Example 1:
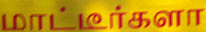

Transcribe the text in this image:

மாட்டீர்களா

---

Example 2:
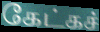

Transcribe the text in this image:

கேட்கச்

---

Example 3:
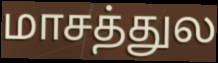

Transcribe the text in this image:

மாசத்துல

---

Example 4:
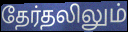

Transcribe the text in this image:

தேர்தலிலும்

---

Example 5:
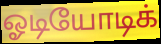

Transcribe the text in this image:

ஓடியோடிக்